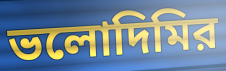
ভলোদিমির